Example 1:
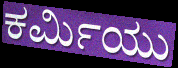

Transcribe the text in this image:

ಕರ್ಮಿಯು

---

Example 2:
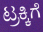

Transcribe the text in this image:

ಟ್ರಕ್ಕಿಗೆ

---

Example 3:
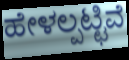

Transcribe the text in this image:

ಹೇಳಲ್ಪಟ್ಟಿವೆ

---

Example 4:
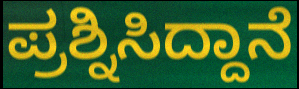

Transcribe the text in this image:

ಪ್ರಶ್ನಿಸಿದ್ದಾನೆ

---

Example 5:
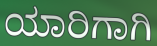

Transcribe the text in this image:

ಯಾರಿಗಾಗಿ